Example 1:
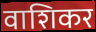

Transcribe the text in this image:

वाशिकर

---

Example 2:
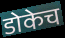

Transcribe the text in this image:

डोकेच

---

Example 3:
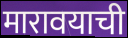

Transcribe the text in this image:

मारावयाची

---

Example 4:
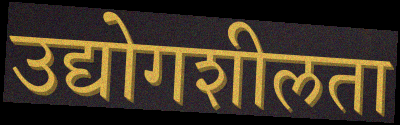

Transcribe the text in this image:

उद्योगशीलता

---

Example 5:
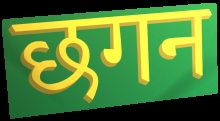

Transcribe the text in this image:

छगन